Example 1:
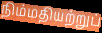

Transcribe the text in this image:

நிம்மதியற்றுப்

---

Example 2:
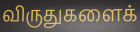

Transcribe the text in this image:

விருதுகளைக்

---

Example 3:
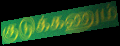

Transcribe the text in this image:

குடுக்கணும்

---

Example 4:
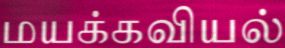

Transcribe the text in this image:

மயக்கவியல்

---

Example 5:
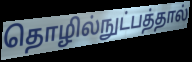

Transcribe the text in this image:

தொழில்நுட்பத்தால்